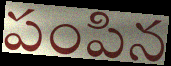
పంపిన